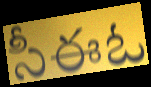
సీఈఓ